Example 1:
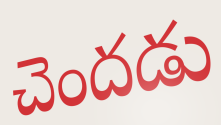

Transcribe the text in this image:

చెందడు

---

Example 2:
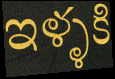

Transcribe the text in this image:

ఇళ్ళకి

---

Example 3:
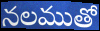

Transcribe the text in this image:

నలముతో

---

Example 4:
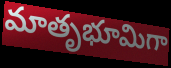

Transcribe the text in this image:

మాతృభూమిగా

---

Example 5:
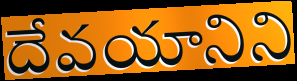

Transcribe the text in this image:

దేవయానిని